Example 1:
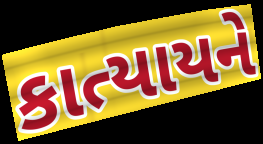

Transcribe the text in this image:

કાત્યાયને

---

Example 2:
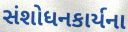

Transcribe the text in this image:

સંશોધનકાર્યના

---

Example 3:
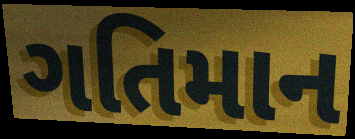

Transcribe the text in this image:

ગતિમાન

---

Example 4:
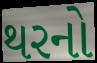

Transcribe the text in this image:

થરનો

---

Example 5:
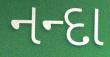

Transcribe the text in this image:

નન્દા